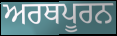
ਅਰਥਪੂਰਨ